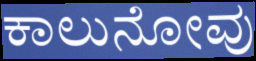
ಕಾಲುನೋವು